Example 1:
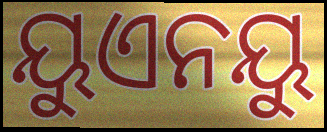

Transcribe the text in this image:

ୟୁଏନୟୁ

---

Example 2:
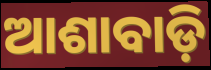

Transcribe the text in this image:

ଆଶାବାଡ଼ି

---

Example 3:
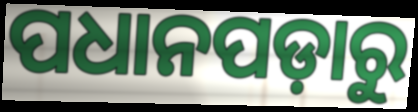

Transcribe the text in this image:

ପଧାନପଡ଼ାରୁ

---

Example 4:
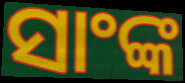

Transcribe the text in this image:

ସାଂଙ୍କ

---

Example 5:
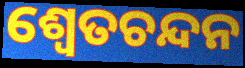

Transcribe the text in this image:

ଶ୍ୱେତଚନ୍ଦନ